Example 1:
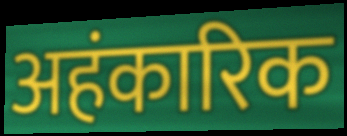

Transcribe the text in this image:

अहंकारिक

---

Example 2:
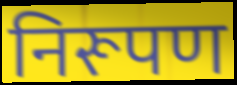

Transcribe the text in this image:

निरूपण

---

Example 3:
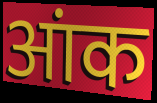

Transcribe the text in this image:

आंक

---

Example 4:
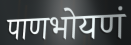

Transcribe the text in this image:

पाणभोयणं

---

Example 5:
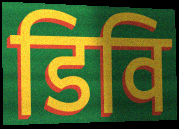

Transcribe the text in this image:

डिवि